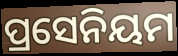
ପ୍ରସେନିୟମ